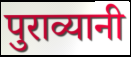
पुराव्यानी